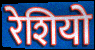
रेशियो